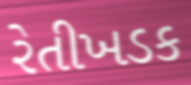
રેતીખડક